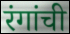
रंगांची